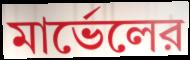
মার্ভেলের